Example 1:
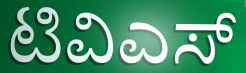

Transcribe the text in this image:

ಟಿವಿಎಸ್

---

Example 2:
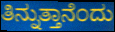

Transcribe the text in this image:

ತಿನ್ನುತ್ತಾನೆಂದು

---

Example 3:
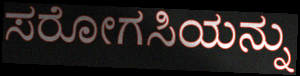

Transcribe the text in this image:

ಸರೋಗಸಿಯನ್ನು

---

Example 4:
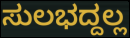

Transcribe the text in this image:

ಸುಲಭದ್ದಲ್ಲ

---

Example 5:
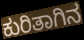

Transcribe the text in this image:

ಕುರಿತಾಗಿನ